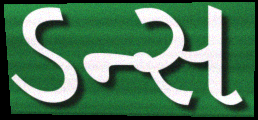
ડન્સ